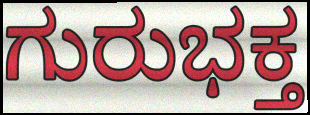
ಗುರುಭಕ್ತ